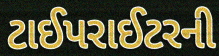
ટાઈપરાઈટરની